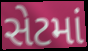
સેટમાં